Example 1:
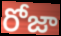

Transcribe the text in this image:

రోజా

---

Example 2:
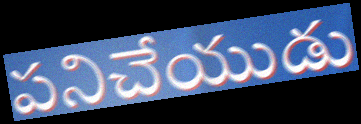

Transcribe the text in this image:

పనిచేయుడు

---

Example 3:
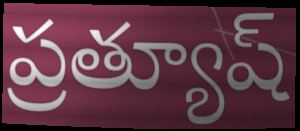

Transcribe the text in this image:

ప్రత్యూష్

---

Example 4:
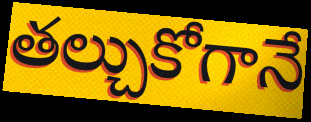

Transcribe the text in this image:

తల్చుకోగానే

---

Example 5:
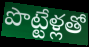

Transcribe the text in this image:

పొట్టేళ్లతో